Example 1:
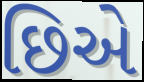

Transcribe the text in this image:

છિએ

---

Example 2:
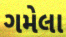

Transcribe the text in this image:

ગમેલા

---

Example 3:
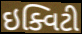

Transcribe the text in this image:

ઇક્વિટી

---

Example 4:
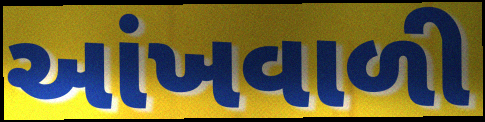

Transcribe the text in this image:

આંખવાળી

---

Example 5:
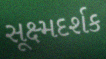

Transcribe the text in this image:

સૂક્ષ્મદર્શક